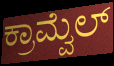
ಕ್ರಾಮ್ವೆಲ್